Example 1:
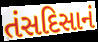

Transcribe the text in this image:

તંસદિસાનં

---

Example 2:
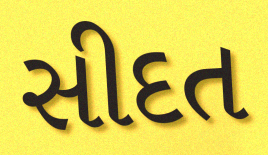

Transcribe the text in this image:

સીદત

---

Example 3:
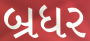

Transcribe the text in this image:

બ્રધર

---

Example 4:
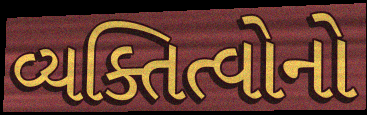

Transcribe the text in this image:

વ્યક્તિત્વોનો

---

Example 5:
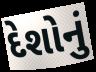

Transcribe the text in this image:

દેશોનું